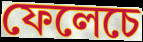
ফেলেচে